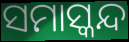
ସମାସ୍କନ୍ଦ